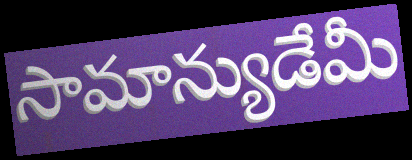
సామాన్యుడేమీ